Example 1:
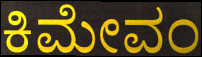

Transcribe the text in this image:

ಕಿಮೇವಂ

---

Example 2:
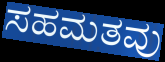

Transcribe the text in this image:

ಸಹಮತವು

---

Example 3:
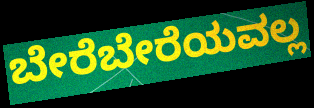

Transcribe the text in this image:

ಬೇರೆಬೇರೆಯವಲ್ಲ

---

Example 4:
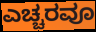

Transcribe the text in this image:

ಎಚ್ಚರವೂ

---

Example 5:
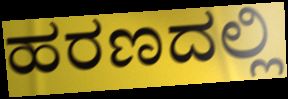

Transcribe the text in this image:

ಹರಣದಲ್ಲಿ